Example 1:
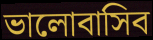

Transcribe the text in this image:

ভালোবাসিব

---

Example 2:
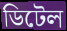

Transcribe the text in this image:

ডিটেল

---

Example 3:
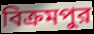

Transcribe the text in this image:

বিক্রমপুর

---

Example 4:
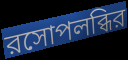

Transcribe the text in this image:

রসোপলব্ধির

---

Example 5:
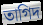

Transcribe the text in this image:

তাগিদ